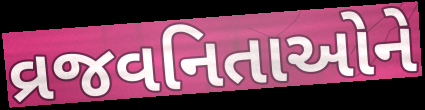
વ્રજવનિતાઓને